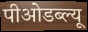
पीओडब्ल्यू